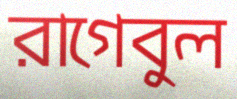
রাগেবুল